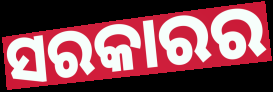
ସରକାରର